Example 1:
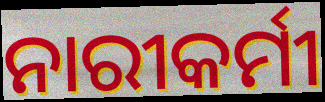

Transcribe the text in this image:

ନାରୀକର୍ମୀ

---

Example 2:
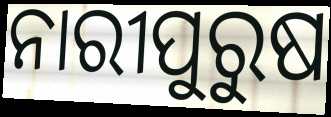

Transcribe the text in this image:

ନାରୀପୁରୁଷ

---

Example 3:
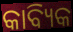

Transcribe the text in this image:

କାବ୍ୟିକ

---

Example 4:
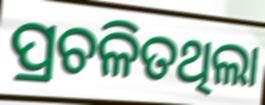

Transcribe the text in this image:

ପ୍ରଚଳିତଥିଲା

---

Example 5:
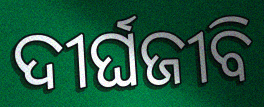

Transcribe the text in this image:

ଦୀର୍ଘଜୀବି